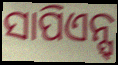
ସାପିଏନ୍ସ୍